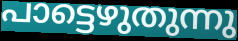
പാട്ടെഴുതുന്നു